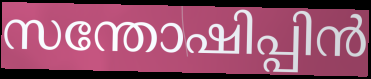
സന്തോഷിപ്പിൻ